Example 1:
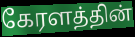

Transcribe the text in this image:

கேரளத்தின்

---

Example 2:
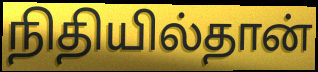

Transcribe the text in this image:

நிதியில்தான்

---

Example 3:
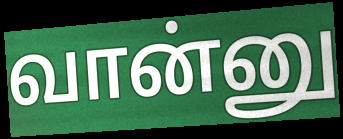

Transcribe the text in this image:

வான்னு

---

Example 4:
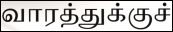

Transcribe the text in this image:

வாரத்துக்குச்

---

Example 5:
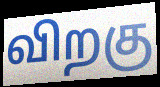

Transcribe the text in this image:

விறகு